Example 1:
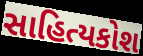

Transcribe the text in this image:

સાહિત્યકોશ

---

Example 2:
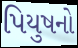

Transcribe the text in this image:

પિયુષનો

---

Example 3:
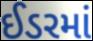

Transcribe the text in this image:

ઈડરમાં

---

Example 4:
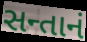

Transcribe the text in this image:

સન્તાનં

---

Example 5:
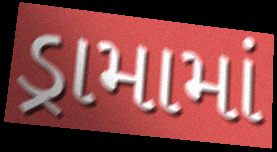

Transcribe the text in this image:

ડ્રામામાં